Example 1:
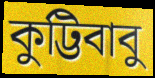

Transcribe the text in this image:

কুট্টিবাবু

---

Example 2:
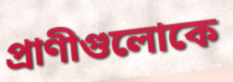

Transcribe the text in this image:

প্রাণীগুলোকে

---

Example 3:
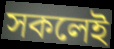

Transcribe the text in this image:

সকলেই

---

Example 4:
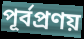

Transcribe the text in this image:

পূর্বপ্রণয়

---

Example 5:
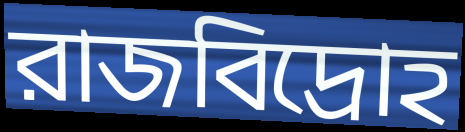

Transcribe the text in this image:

রাজবিদ্রোহ